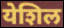
येशिल